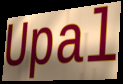
Upal